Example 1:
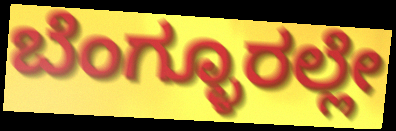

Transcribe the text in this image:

ಬೆಂಗ್ಳೂರಲ್ಲೇ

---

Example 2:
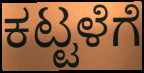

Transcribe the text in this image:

ಕಟ್ಟಳೆಗೆ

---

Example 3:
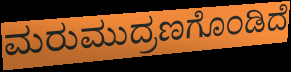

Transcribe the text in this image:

ಮರುಮುದ್ರಣಗೊಂಡಿದೆ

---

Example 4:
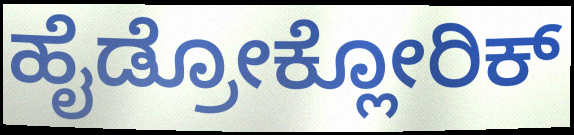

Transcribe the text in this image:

ಹೈಡ್ರೋಕ್ಲೋರಿಕ್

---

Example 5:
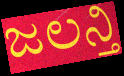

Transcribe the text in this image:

ಜಲನ್ತಿ